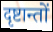
दृष्टान्तों